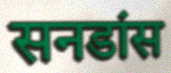
सनडांस